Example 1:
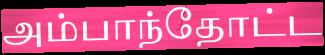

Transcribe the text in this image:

அம்பாந்தோட்ட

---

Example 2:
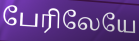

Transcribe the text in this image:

பேரிலேயே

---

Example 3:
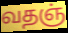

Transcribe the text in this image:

வதஞ்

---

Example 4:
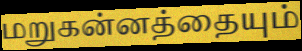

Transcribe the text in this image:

மறுகன்னத்தையும்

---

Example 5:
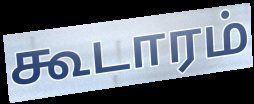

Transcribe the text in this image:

கூடாரம்